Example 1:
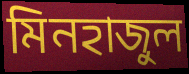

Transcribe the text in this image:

মিনহাজুল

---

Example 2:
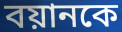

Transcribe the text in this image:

বয়ানকে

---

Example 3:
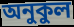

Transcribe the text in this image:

অনুকুল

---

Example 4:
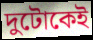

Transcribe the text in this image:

দুটোকেই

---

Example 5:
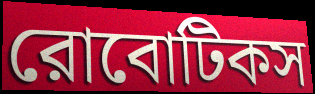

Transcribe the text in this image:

রোবোটিকস